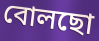
বোলছো